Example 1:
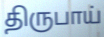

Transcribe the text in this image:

திருபாய்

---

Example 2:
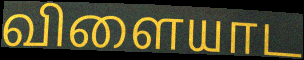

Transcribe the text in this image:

விளையாட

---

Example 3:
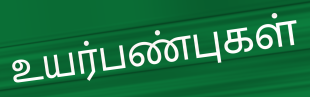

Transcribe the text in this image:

உயர்பண்புகள்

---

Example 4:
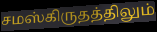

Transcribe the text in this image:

சமஸ்கிருதத்திலும்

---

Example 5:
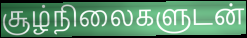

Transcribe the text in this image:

சூழ்நிலைகளுடன்